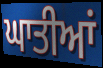
ਘਾਤੀਆਂ